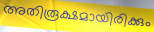
അതിരൂക്ഷമായിരിക്കും